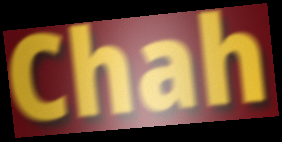
Chah